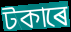
টকাৰে